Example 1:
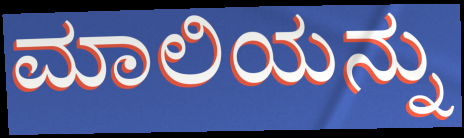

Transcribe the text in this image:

ಮಾಲಿಯನ್ನು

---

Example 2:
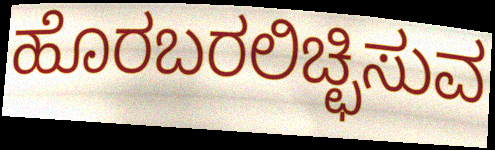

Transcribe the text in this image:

ಹೊರಬರಲಿಚ್ಛಿಸುವ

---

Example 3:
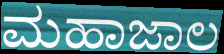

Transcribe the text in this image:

ಮಹಾಜಾಲ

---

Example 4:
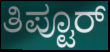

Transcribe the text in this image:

ತಿಪ್ಟೂರ್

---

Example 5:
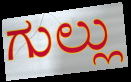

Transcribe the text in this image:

ಗುಲ್ಲು